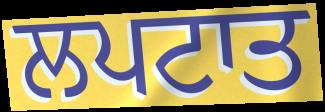
ਲਪਟਾਤ